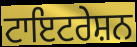
ਟਾਇਟਰੇਸ਼ਨ